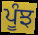
ਪੂੰਝ